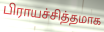
பிராயச்சித்தமாக